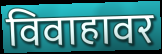
विवाहावर